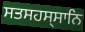
ਸਤਸਹਸ੍ਸਾਨਿ